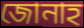
জোনাহ